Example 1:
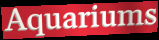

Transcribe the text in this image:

Aquariums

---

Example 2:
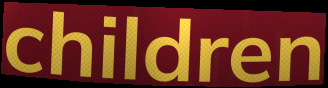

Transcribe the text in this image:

children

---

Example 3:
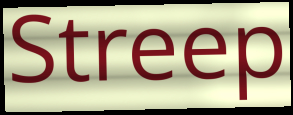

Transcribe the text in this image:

Streep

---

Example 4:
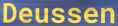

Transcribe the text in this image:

Deussen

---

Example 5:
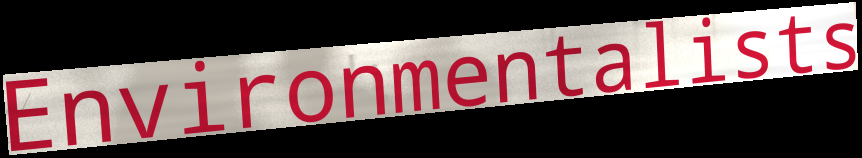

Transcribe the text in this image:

Environmentalists